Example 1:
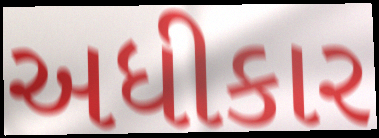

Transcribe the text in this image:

અધીકાર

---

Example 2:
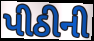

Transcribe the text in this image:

પીઠીની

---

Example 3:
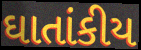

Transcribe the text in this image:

ઘાતાંકીય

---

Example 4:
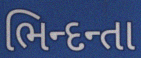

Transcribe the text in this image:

ભિન્દન્તા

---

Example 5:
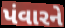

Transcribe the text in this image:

પંવારને